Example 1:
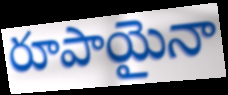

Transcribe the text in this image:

రూపాయైనా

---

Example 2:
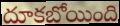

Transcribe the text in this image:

దూకబోయింది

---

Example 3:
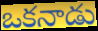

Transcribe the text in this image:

ఒకనాడు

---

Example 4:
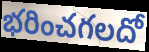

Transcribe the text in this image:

భరించగలదో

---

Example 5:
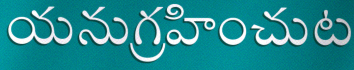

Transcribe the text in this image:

యనుగ్రహించుట